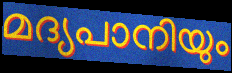
മദ്യപാനിയും